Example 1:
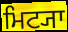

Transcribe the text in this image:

ਮਿਟ੍ਯਾ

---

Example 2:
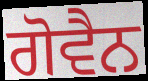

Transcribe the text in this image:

ਗੋਵੈਨ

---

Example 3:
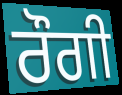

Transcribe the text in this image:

ਰੌਗੀ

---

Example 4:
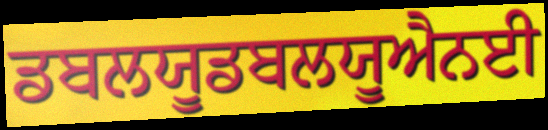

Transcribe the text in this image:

ਡਬਲਯੂਡਬਲਯੂਐਨਈ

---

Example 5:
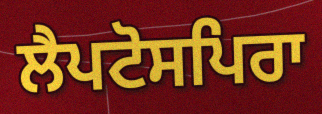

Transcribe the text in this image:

ਲੈਪਟੋਸਪਿਰਾ